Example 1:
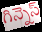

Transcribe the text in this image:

గిన్నెస్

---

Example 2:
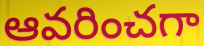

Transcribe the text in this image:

ఆవరించగా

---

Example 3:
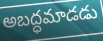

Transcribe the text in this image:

అబద్ధమాడడు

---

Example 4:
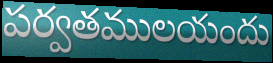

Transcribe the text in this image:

పర్వతములయందు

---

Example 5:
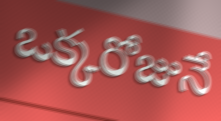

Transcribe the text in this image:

ఒక్కరోజునే